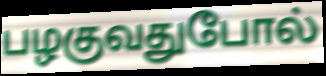
பழகுவதுபோல்